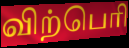
விற்பெரி